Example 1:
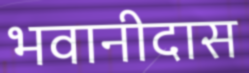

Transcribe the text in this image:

भवानीदास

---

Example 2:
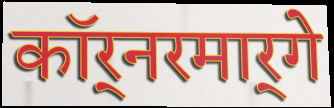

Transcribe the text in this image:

कॉर्नरमार्गे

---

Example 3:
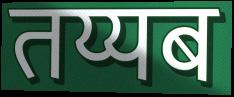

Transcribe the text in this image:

तय्यब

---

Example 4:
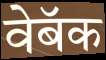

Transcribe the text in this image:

वेबॅक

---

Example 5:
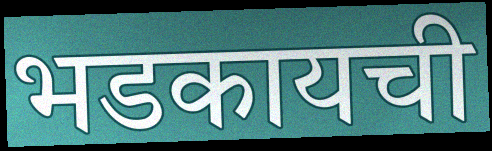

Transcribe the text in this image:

भडकायची